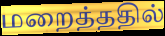
மறைத்ததில்